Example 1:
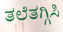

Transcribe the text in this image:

ತಲೆತಗ್ಗಿಸಿ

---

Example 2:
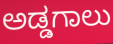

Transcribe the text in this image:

ಅಡ್ಡಗಾಲು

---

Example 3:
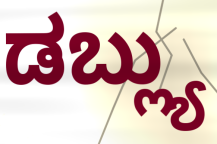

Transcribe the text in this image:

ಡಬ್ಲ್ಯು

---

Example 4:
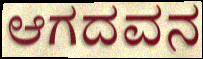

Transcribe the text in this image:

ಆಗದವನ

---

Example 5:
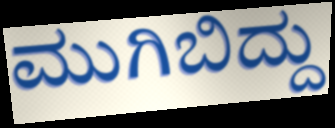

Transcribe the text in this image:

ಮುಗಿಬಿದ್ದು